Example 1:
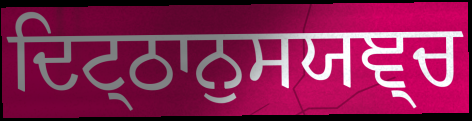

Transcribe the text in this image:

ਦਿਟ੍ਠਾਨੁਸਯਞ੍ਚ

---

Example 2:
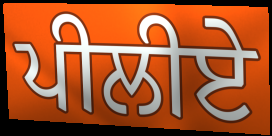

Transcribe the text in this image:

ਪੀਲੀਏ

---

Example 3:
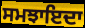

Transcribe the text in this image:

ਸਮਝਾਇਦਾ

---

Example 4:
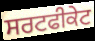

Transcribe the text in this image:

ਸਰਟਫੀਕੇਟ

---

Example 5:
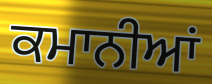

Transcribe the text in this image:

ਕਮਾਨੀਆਂ